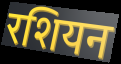
रशियन